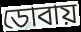
ডোবায়